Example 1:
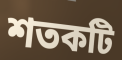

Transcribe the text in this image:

শতকটি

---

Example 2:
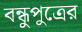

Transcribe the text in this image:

বন্ধুপুত্রের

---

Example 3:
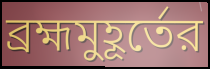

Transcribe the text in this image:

ব্রহ্মমুহূর্তের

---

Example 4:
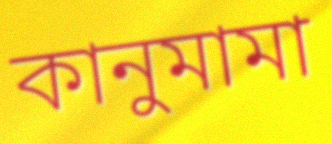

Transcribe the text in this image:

কানুমামা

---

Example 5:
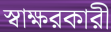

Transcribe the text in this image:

স্বাক্ষরকারী